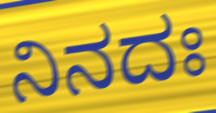
ನಿನದಃ